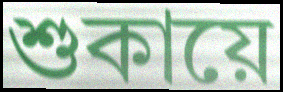
শুকায়ে